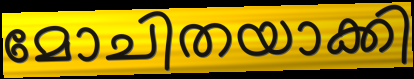
മോചിതയാക്കി